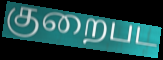
குறைபட